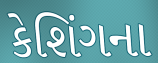
કેશિંગના